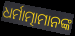
ଧର୍ମାତ୍ମାମାନଙ୍କ